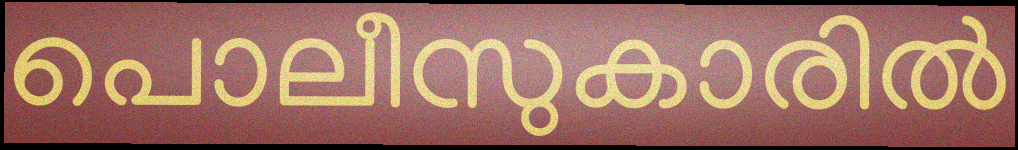
പൊലീസുകാരിൽ